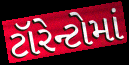
ટૉરેન્ટોમાં